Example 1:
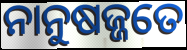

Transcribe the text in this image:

ନାନୁଷଜ୍ଜତେ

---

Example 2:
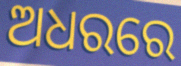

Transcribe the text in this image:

ଅଧରରେ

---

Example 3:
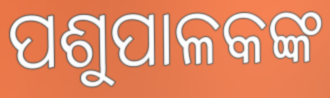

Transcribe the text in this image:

ପଶୁପାଳକଙ୍କ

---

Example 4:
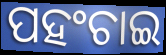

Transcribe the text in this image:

ପହଂଚାଇ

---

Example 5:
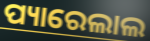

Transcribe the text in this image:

ପ୍ୟାରେଲାଲ